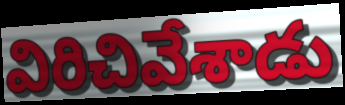
విరిచివేశాడు